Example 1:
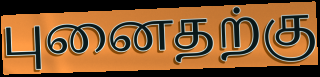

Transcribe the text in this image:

புனைதற்கு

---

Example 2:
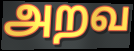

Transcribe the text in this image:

அறவ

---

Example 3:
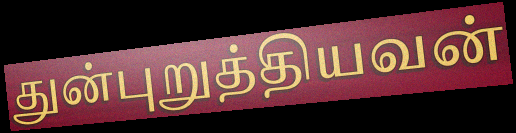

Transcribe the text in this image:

துன்புறுத்தியவன்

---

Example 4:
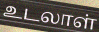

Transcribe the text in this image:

உடலாள்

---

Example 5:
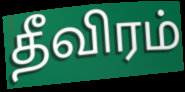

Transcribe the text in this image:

தீவிரம்